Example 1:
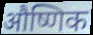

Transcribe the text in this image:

औष्णिक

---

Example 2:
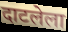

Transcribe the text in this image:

दाटलेला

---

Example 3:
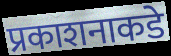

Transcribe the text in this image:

प्रकाशनाकडे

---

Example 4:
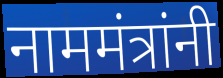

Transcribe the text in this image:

नाममंत्रांनी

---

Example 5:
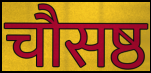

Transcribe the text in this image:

चौसष्ठ